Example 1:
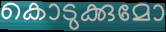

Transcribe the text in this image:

കൊടുക്കുമോ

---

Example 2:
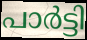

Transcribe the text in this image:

പാർട്ടി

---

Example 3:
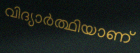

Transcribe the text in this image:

വിദ്യാർത്ഥിയാണ്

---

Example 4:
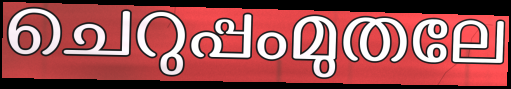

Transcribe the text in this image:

ചെറുപ്പംമുതലേ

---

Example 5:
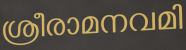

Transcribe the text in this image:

ശ്രീരാമനവമി